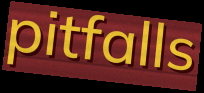
pitfalls